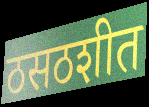
ठसठशीत